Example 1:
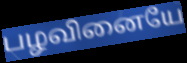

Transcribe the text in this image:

பழவினையே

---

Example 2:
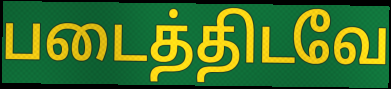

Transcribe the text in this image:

படைத்திடவே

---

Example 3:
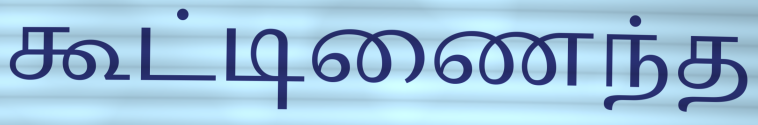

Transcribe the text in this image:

கூட்டிணைந்த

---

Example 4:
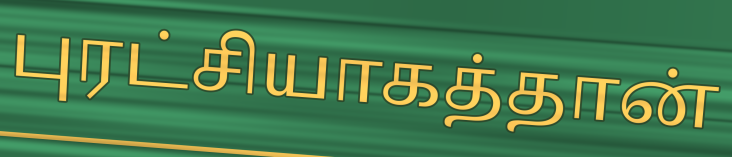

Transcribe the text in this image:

புரட்சியாகத்தான்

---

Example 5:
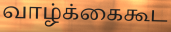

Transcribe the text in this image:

வாழ்க்கைகூட